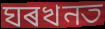
ঘৰখনত